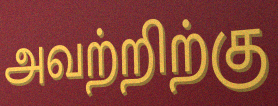
அவற்றிற்கு